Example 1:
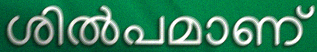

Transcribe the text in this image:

ശിൽപമാണ്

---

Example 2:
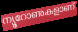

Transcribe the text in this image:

ന്യൂറോണുകളാണ്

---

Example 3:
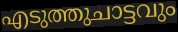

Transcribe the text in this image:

എടുത്തുചാട്ടവും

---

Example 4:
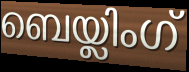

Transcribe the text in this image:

ബെയ്ലിംഗ്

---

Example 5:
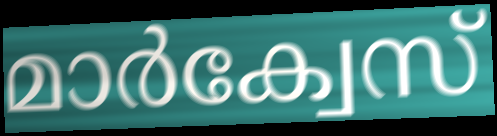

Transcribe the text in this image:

മാർക്വേസ്